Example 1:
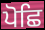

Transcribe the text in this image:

ਪੋਛਿ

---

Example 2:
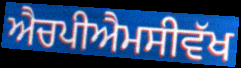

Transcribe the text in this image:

ਐਚਪੀਐਮਸੀਵੱਖ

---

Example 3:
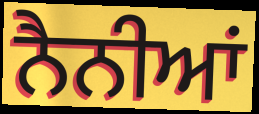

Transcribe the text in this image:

ਨੈਨੀਆਂ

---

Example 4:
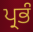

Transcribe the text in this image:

ਪ੍ਰਭੰ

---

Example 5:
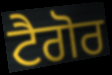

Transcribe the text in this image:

ਟੈਗੋਰ